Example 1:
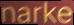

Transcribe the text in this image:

narke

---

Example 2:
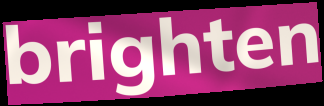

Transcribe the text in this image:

brighten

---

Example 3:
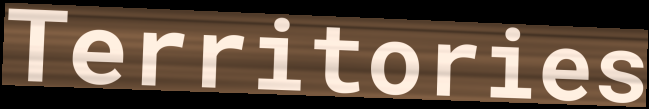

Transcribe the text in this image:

Territories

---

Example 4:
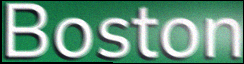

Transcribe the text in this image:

Boston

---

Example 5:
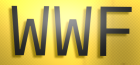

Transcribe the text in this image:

WWF